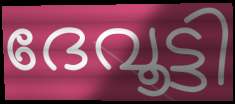
ദേവൂട്ടി